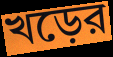
খড়ের